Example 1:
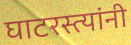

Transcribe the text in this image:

घाटरस्त्यांनी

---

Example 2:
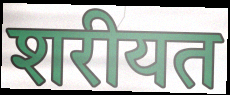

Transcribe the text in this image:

शरीयत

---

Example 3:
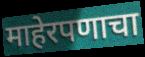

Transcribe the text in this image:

माहेरपणाचा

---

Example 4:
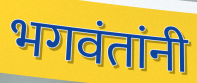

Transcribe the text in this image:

भगवंतांनी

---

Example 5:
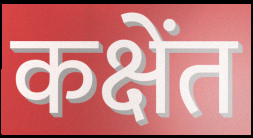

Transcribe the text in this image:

कक्षेंत